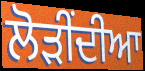
ਲੋੜੀਂਦੀਆ